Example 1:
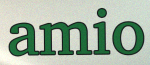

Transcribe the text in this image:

amio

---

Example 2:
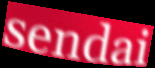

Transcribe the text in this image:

sendai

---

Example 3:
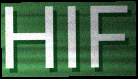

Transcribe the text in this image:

HIF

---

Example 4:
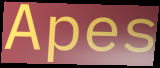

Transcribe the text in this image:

Apes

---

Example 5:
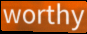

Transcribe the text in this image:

worthy